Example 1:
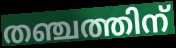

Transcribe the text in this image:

തഞ്ചത്തിന്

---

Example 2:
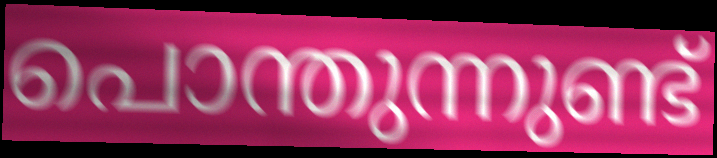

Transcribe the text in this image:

പൊന്തുന്നുണ്ട്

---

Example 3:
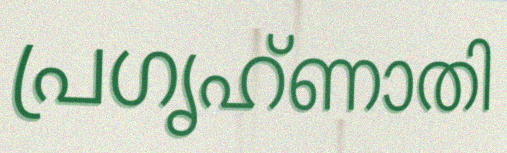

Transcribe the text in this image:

പ്രഗൃഹ്ണാതി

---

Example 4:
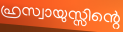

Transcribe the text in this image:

ഹ്രസ്വായുസ്സിന്റെ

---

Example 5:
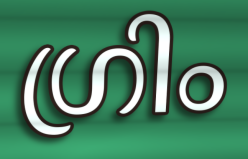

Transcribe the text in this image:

ഗ്രിം